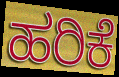
ಹರಿಕೆ